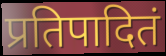
प्रतिपादितं